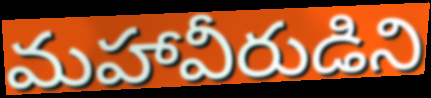
మహావీరుడిని